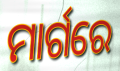
ମାର୍ଗରେ